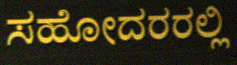
ಸಹೋದರರಲ್ಲಿ